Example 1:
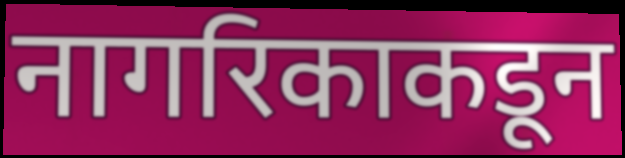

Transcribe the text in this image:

नागरिकाकडून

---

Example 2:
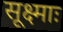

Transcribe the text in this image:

सूक्ष्माः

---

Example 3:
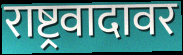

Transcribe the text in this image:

राष्ट्रवादावर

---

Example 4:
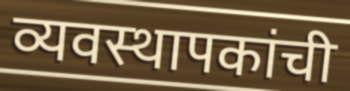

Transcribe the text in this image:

व्यवस्थापकांची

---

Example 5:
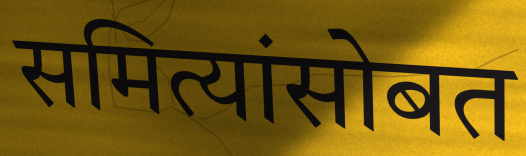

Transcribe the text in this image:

समित्यांसोबत